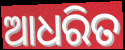
ଆଧରିତ